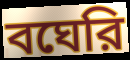
বঘেরি